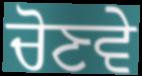
ਚੋਣਵੇ